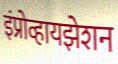
इंप्रोव्हायझेशन